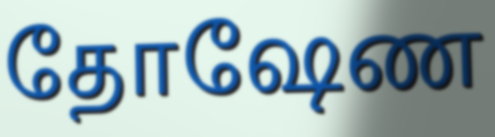
தோஷேண